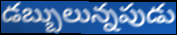
డబ్బులున్నపుడు